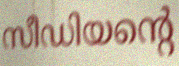
സീഡിയന്റെ